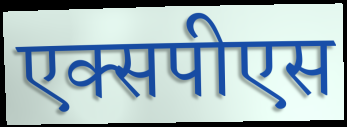
एक्सपीएस